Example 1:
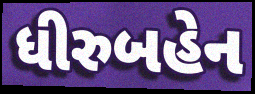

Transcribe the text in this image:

ધીરુબહેન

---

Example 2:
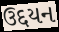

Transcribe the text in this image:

ઉદ્દયન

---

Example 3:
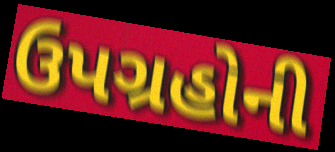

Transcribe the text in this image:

ઉપગ્રહોની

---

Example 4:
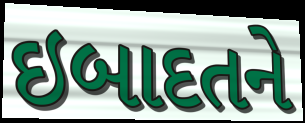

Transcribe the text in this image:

ઇબાદતને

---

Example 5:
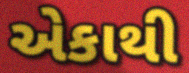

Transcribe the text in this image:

એકાથી